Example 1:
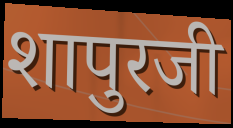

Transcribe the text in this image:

शापुरजी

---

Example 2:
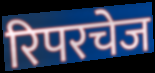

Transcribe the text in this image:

रिपरचेज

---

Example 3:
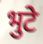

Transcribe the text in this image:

भुटे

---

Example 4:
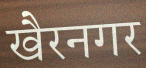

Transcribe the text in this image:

खैरनगर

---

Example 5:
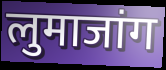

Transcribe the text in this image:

लुमाजांग